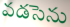
వడసెను